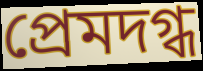
প্রেমদগ্ধ